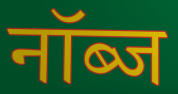
नॉब्ज